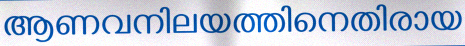
ആണവനിലയത്തിനെതിരായ